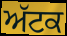
ਅੱਟਕ